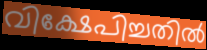
വിക്ഷേപിച്ചതിൽ